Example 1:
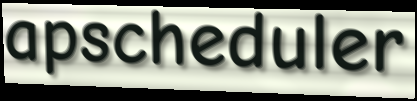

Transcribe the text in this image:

apscheduler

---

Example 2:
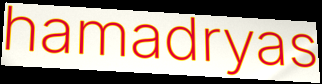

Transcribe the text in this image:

hamadryas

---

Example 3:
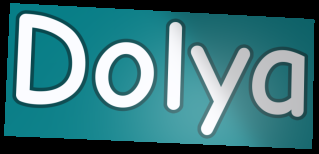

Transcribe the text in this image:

Dolya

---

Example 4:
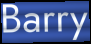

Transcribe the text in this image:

Barry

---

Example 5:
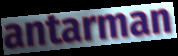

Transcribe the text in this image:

antarman